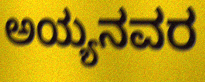
ಅಯ್ಯನವರ